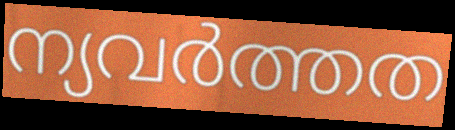
ന്യവർത്തത